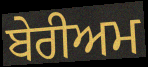
ਬੇਰੀਅਮ